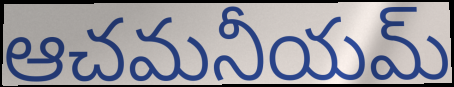
ఆచమనీయమ్